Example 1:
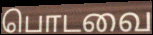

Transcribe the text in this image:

பொடவை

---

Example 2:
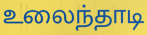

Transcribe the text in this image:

உலைந்தாடி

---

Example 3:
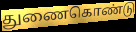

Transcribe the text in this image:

துணைகொண்டு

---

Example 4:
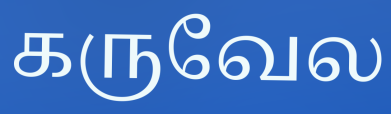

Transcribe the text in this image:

கருவேல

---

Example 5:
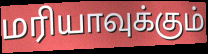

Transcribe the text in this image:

மரியாவுக்கும்